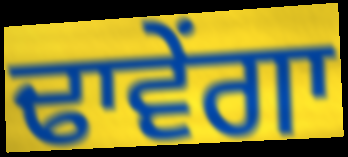
ਢਾਵੇਂਗਾ